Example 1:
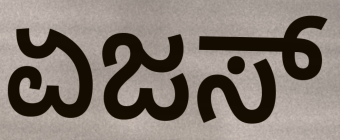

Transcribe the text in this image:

ಏಜಸ್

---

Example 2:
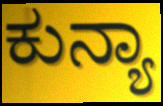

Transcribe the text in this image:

ಕುನ್ಯಾ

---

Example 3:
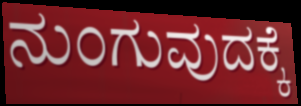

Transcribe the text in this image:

ನುಂಗುವುದಕ್ಕೆ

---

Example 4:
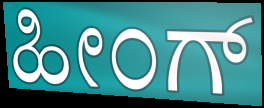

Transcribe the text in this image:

ಹೀಂಗ್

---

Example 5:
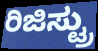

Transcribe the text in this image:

ರಿಜಿಸ್ಟ್ರು